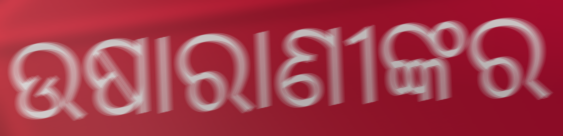
ଉଷାରାଣୀଙ୍କର